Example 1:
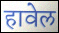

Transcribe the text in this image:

हावेल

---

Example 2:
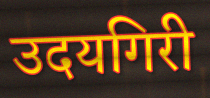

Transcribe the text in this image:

उदयगिरी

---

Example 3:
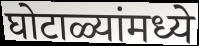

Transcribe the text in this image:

घोटाळ्यांमध्ये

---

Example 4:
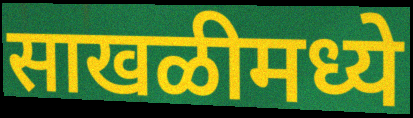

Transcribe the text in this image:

साखळीमध्ये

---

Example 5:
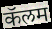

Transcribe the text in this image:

कॅलम